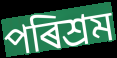
পৰিশ্ৰম